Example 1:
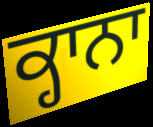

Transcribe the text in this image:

ਕ੍ਹਾਨਾ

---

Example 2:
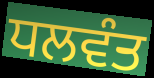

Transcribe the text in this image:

ਧਲਵੰਤ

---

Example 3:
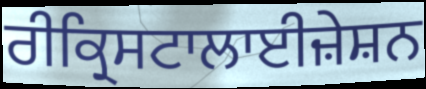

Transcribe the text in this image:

ਰੀਕ੍ਰਿਸਟਾਲਾਈਜ਼ੇਸ਼ਨ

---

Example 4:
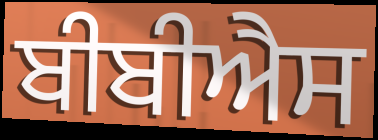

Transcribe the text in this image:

ਬੀਬੀਐਸ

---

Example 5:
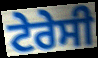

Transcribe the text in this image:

ਟੇਰੇਸੀ